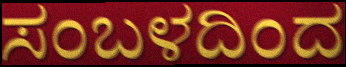
ಸಂಬಳದಿಂದ